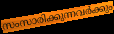
സംസാരിക്കുന്നവർക്കും